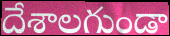
దేశాలగుండా